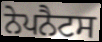
ਨੇਪਨੈਟਸ